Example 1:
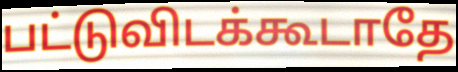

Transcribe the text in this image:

பட்டுவிடக்கூடாதே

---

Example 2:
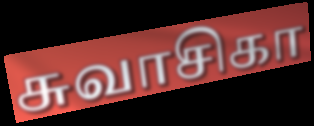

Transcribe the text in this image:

சுவாசிகா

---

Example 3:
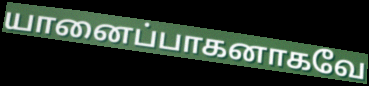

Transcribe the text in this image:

யானைப்பாகனாகவே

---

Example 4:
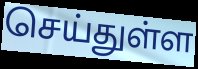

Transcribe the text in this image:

செய்துள்ள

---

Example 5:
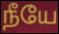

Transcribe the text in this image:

நீயே